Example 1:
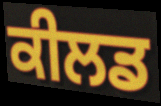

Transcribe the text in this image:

ਕੀਲਡ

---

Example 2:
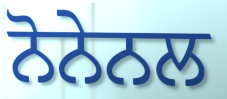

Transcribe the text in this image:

ਨੋਨੇਨਲ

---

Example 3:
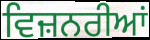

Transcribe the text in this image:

ਵਿਜ਼ਨਰੀਆਂ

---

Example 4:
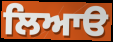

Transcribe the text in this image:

ਲਿਆੳ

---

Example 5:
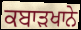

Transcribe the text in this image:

ਕਬਾੜਖਾਨੇ